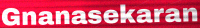
Gnanasekaran